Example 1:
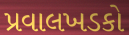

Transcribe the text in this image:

પ્રવાલખડકો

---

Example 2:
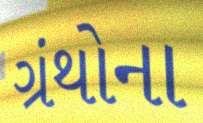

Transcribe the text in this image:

ગ્રંથોના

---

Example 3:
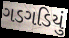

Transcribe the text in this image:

ગડગડિયું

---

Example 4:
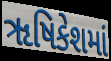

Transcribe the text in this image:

ૠષિકેશમાં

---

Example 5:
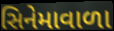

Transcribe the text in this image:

સિનેમાવાળા